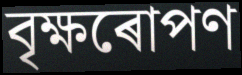
বৃক্ষৰোপণ